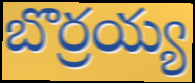
బొర్రయ్య